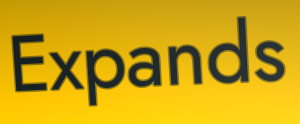
Expands